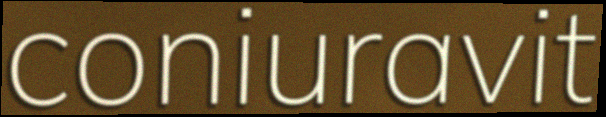
coniuravit